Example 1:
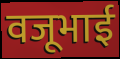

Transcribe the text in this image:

वजूभाई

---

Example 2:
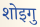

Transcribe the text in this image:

शोइगु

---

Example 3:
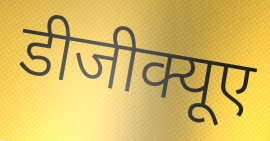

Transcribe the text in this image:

डीजीक्यूए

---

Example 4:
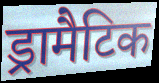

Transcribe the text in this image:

ड्रामैटिक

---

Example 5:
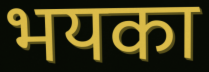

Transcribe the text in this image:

भयका